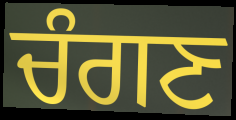
ਚੰਗਣ